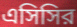
এসিসির